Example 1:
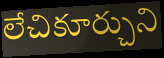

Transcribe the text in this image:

లేచికూర్చుని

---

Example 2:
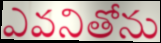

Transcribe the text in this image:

ఎవనితోను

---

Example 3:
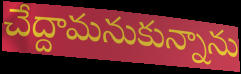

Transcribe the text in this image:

చేద్దామనుకున్నాను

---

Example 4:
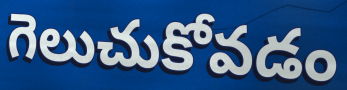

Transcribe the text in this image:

గెలుచుకోవడం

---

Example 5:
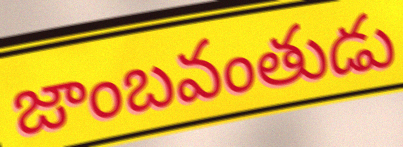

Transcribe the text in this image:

జాంబవంతుడు